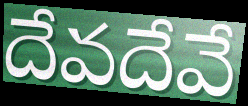
దేవదేవే